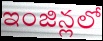
ఇంజిన్లలో